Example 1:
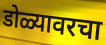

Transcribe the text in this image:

डोळ्यावरचा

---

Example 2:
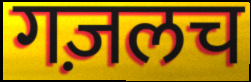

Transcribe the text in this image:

गज़लच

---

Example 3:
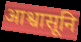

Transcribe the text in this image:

आश्वासूनि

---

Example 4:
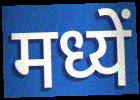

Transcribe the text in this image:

मध्यें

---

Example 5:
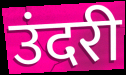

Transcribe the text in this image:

उंदरी